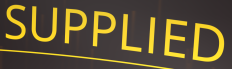
SUPPLIED